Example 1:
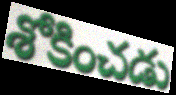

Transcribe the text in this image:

శోకించడు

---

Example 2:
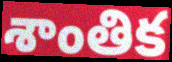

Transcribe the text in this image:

శాంతిక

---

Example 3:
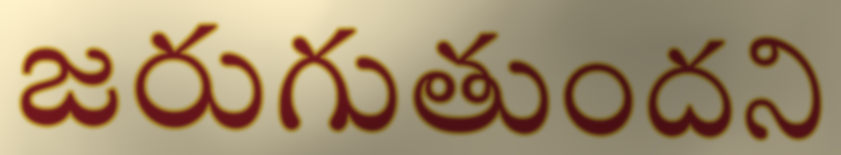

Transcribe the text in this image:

జరుగుతుందని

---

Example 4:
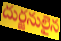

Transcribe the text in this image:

దుర్జనులైన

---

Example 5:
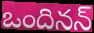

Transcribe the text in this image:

ఒందినన్